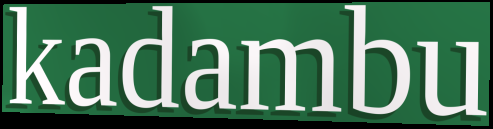
kadambu